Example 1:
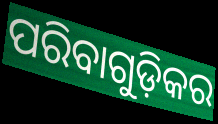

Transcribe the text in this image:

ପରିବାଗୁଡ଼ିକର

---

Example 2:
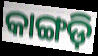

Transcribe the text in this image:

କାଙ୍ଗଡ଼ି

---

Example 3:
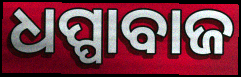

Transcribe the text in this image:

ଧପ୍ପାବାଜ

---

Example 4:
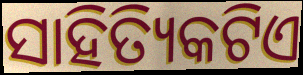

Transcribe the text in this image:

ସାହିତ୍ୟିକଟିଏ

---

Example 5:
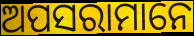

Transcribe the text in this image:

ଅପସରାମାନେ